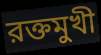
রক্তমুখী